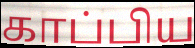
காப்பிய